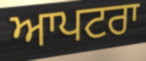
ਆਪਟਰਾ